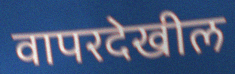
वापरदेखील